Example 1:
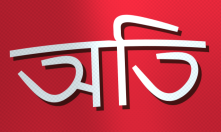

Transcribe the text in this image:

অতি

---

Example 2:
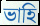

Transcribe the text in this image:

ভাহি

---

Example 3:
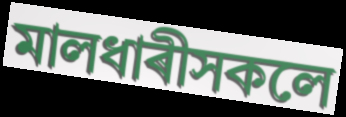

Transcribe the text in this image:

মালধাৰীসকলে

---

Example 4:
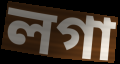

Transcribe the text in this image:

লগা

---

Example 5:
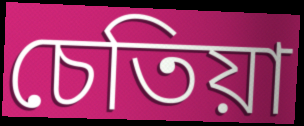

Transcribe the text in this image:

চেতিয়া